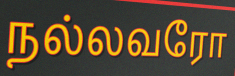
நல்லவரோ